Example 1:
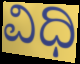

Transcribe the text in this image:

ವಿಧಿ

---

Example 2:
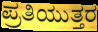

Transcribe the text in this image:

ಪ್ರತಿಯುತ್ತರ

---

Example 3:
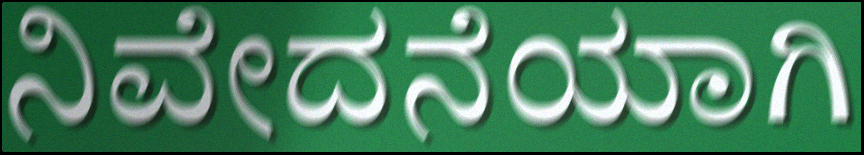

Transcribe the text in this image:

ನಿವೇದನೆಯಾಗಿ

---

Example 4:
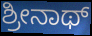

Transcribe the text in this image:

ಶ್ರೀನಾಥ್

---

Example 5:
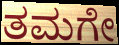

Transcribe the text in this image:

ತಮಗೇ